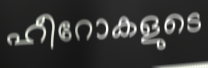
ഹീറോകളുടെ